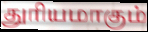
துரியமாகும்